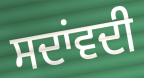
ਸਦਾਂਵਦੀ